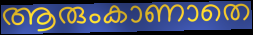
ആരുംകാണാതെ